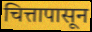
चित्तापासून